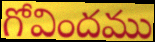
గోవిందము